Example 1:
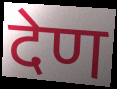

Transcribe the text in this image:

देण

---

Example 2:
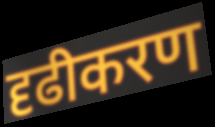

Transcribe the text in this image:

दृढीकरण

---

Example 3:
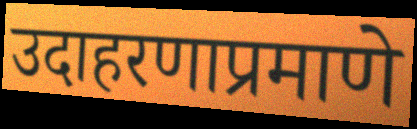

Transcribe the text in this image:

उदाहरणाप्रमाणे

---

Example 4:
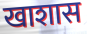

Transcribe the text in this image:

खाशास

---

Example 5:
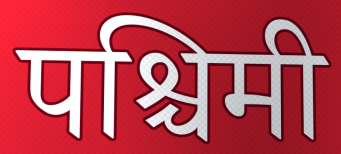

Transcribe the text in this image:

पश्चिमी